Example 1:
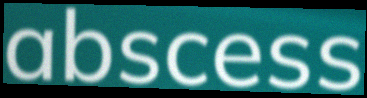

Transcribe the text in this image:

abscess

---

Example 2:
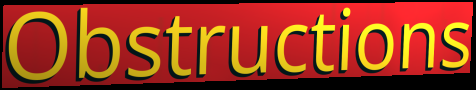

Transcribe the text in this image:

Obstructions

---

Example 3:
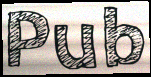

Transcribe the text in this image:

Pub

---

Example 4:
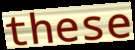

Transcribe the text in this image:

these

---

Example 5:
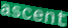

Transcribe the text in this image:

ascent